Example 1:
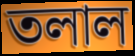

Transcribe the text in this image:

তলাল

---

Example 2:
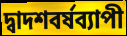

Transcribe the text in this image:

দ্বাদশবর্ষব্যাপী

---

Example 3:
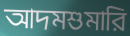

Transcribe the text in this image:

আদমশুমারি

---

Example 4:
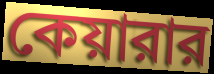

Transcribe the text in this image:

কেয়ারার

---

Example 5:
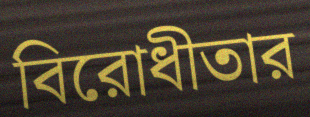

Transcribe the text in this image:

বিরোধীতার